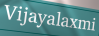
Vijayalaxmi